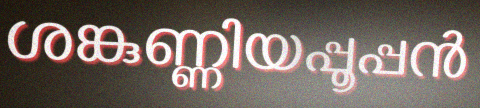
ശങ്കുണ്ണിയപ്പൂപ്പൻ